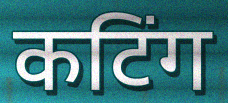
कटिंग